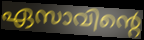
ഏസാവിന്റെ